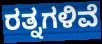
ರತ್ನಗಳಿವೆ